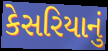
કેસરિયાનું